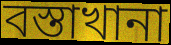
বস্তাখানা